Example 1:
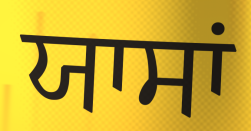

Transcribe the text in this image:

ਯਾਸਾਂ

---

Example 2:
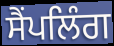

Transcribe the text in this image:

ਸੈਂਪਲਿੰਗ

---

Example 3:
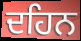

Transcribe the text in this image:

ਦਹਿਨ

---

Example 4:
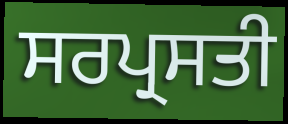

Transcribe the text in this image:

ਸਰਪ੍ਰਸਤੀ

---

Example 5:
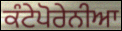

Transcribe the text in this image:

ਕੰਟੇਪੋਰੇਨੀਆ